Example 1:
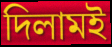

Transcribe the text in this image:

দিলামই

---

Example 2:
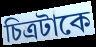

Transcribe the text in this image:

চিত্রটাকে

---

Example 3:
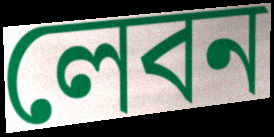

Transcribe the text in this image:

লেবন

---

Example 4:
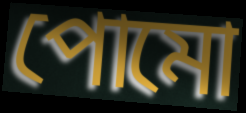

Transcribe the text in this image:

পোমো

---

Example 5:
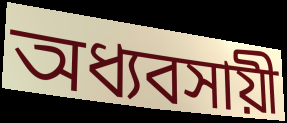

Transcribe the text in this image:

অধ্যবসায়ী